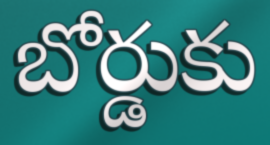
బోర్డుకు